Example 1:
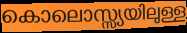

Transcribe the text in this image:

കൊലൊസ്സ്യയിലുള്ള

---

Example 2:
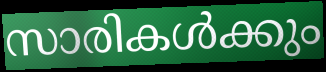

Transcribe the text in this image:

സാരികൾക്കും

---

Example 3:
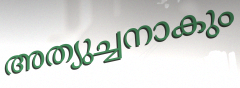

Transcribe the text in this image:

അത്യുച്ചനാകും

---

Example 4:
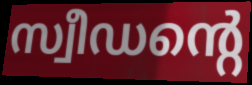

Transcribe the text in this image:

സ്വീഡന്റെ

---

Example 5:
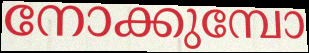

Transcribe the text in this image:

നോക്കുമ്പോ